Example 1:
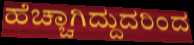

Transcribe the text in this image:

ಹೆಚ್ಚಾಗಿದ್ದುದರಿಂದ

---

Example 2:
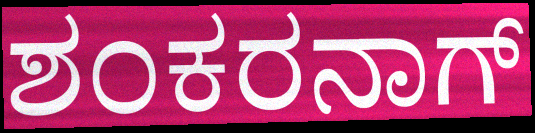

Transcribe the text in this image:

ಶಂಕರನಾಗ್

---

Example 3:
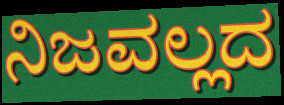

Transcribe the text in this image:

ನಿಜವಲ್ಲದ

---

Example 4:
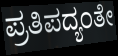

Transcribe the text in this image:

ಪ್ರತಿಪದ್ಯಂತೇ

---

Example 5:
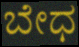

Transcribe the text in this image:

ಬೇಧ